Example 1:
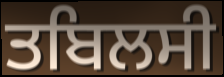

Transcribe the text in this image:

ਤਬਿਲਸੀ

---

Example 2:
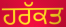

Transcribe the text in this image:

ਹਰੱਕਤ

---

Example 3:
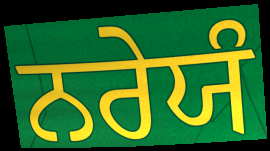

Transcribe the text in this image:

ਨਰੇਯੰ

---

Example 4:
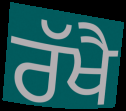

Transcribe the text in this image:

ਰੱਖੈ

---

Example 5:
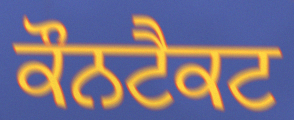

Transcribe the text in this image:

ਕੌਨਟੈਕਟ